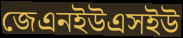
জেএনইউএসইউ